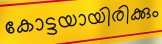
കോട്ടയായിരിക്കും